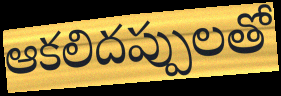
ఆకలిదప్పులతో